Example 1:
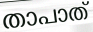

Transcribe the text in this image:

താപാത്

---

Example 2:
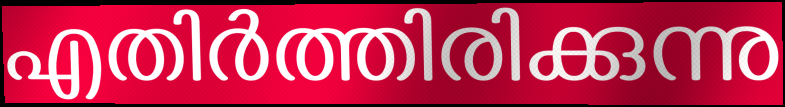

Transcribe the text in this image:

എതിർത്തിരിക്കുന്നു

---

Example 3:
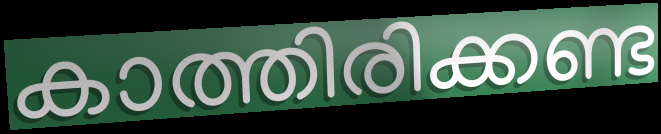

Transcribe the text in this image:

കാത്തിരിക്കണ്ട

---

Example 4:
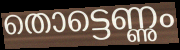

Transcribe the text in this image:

തൊട്ടെണ്ണും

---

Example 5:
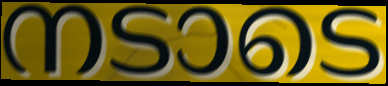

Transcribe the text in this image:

നടാടെ